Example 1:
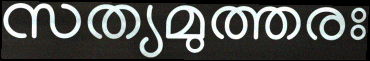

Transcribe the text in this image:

സത്യമുത്തരഃ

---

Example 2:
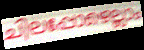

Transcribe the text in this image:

ചിലപ്പോഴെല്ലാം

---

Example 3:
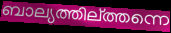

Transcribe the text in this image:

ബാല്യത്തില്ത്തന്നെ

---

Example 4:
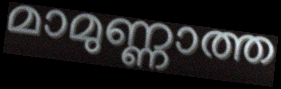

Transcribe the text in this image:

മാമുണ്ണാത്ത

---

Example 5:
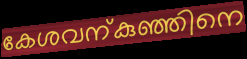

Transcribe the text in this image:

കേശവന്കുഞ്ഞിനെ